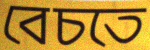
বেচতে